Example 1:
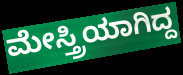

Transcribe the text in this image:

ಮೇಸ್ತ್ರಿಯಾಗಿದ್ದ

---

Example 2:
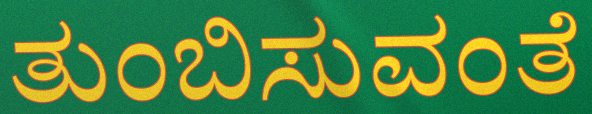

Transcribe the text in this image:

ತುಂಬಿಸುವಂತೆ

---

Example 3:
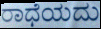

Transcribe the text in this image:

ರಾಧೆಯದು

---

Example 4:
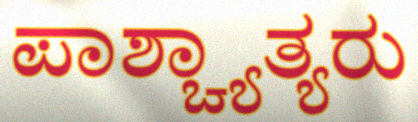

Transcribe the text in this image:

ಪಾಶ್ಚ್ಯಾತ್ಯರು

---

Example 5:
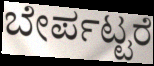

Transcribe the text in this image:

ಬೇರ್ಪಟ್ಟರೆ